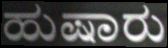
ಹುಷಾರು